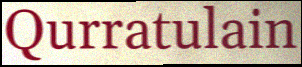
Qurratulain